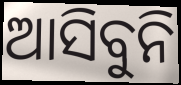
ଆସିବୁନି